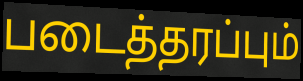
படைத்தரப்பும்